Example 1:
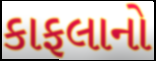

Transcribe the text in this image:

કાફલાનો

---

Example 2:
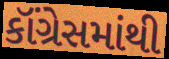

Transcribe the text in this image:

કૉંગ્રેસમાંથી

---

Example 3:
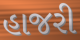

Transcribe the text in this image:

હાજરી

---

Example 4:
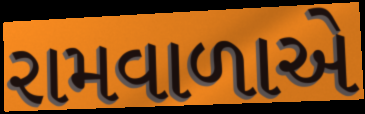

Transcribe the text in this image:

રામવાળાએ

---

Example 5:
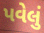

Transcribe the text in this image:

પવેલું